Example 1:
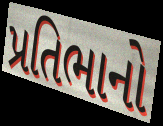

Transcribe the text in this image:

પ્રતિભાનો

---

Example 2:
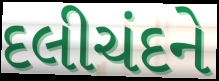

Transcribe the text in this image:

દલીચંદને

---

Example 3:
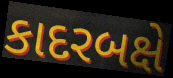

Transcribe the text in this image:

કાદરબક્ષે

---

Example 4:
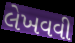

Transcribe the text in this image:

લેખવવી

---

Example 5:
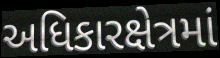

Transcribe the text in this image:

અધિકારક્ષેત્રમાં